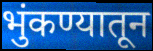
भुंकण्यातून